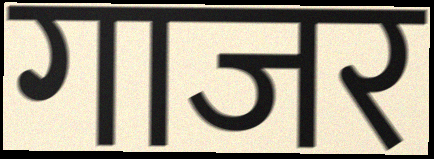
गाजर